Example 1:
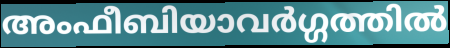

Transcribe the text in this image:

അംഫീബിയാവർഗ്ഗത്തിൽ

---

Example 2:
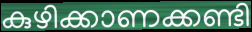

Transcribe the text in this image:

കുഴിക്കാണക്കണ്ടി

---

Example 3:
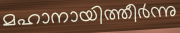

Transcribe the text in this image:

മഹാനായിത്തീർന്നു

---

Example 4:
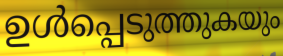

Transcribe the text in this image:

ഉൾപ്പെടുത്തുകയും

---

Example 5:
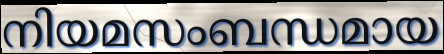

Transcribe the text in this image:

നിയമസംബന്ധമായ